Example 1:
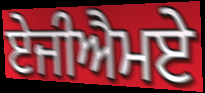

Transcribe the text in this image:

ਏਜੀਐਮਏ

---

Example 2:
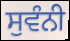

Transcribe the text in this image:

ਸੁਵੰਨੀ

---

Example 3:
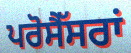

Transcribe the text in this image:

ਪਰੋਸੈੱਸਰਾਂ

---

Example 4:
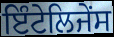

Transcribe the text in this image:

ਇੰਟੇਲਿਜੇਂਸ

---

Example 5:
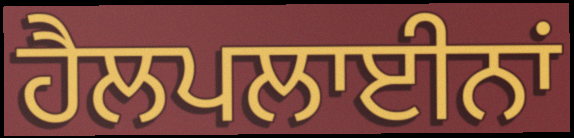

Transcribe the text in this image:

ਹੈਲਪਲਾਈਨਾਂ